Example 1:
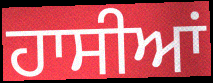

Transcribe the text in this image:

ਹਾਸੀਆਂ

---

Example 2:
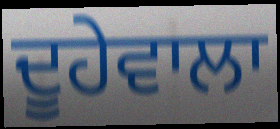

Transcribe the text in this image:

ਦੂਹੇਵਾਲਾ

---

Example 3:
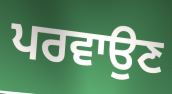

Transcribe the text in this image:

ਪਰਵਾਉਣ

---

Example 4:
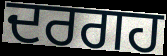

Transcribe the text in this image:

ਦਰਗਹ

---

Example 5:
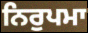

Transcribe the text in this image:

ਨਿਰੁਪਮਾ